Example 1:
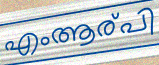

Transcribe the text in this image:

എംആര്പി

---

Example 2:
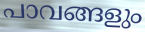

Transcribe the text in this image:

പാവങ്ങളും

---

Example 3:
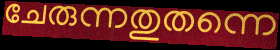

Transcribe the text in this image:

ചേരുന്നതുതന്നെ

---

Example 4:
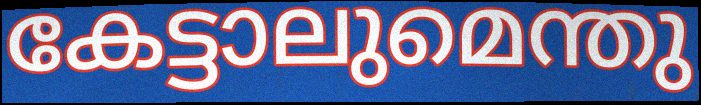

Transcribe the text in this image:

കേട്ടാലുമെന്തു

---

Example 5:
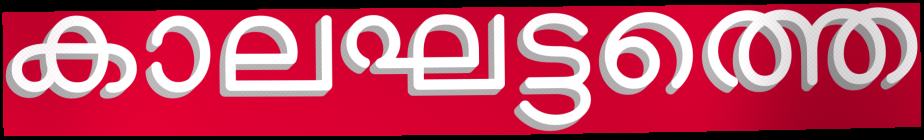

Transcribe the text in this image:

കാലഘട്ടത്തെ